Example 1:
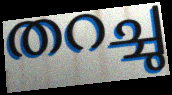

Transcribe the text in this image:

തറച്ചു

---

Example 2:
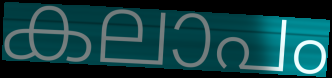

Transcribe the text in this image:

കലാപം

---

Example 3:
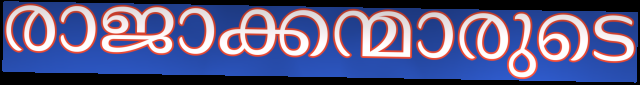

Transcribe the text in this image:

രാജാക്കന്മാരുടെ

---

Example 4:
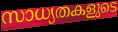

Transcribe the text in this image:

സാധ്യതകളുടെ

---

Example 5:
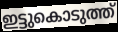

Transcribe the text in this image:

ഇട്ടുകൊടുത്ത്